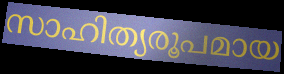
സാഹിത്യരൂപമായ